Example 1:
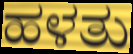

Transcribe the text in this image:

ಹಳತು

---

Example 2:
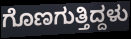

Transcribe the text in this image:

ಗೊಣಗುತ್ತಿದ್ದಳು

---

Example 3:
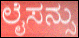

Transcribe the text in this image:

ಲೈಸನ್ಸು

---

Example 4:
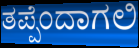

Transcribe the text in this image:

ತಪ್ಪೆಂದಾಗಲಿ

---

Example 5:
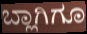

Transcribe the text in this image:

ಬ್ಲಾಗಿಗೂ